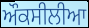
ਔਕਸੀਲੀਆ